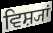
ਵਿਸ਼੍ਯਾਂ